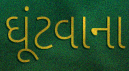
ઘૂંટવાના